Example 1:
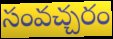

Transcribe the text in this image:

సంవచ్చరం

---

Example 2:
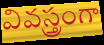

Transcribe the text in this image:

వివస్త్రంగా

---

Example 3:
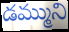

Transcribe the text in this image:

డమ్ముని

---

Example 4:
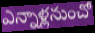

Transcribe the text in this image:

ఎన్నాళ్లనుంచో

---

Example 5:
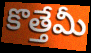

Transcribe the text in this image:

కొత్తేమీ